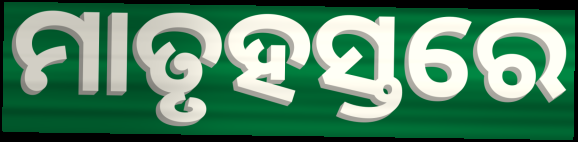
ମାତୃହସ୍ତରେ